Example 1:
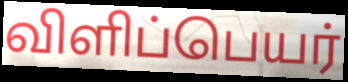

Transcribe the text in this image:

விளிப்பெயர்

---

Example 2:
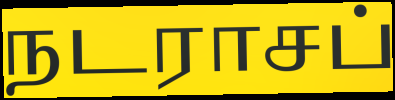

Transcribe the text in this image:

நடராசப்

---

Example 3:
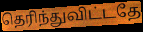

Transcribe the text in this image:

தெரிந்துவிட்டதே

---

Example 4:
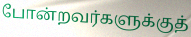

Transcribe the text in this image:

போன்றவர்களுக்குத்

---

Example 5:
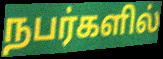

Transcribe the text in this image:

நபர்களில்